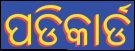
ପଡିକାର୍ଡ